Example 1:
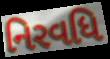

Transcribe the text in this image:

નિરવધિ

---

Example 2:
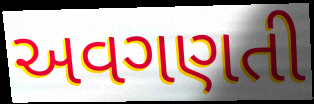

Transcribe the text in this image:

અવગણતી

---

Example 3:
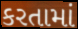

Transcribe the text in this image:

કરતામાં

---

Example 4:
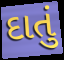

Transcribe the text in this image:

દાતું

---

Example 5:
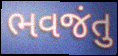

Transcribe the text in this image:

ભવજંતુ